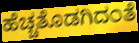
ಹೆಚ್ಚತೊಡಗಿದಂತೆ